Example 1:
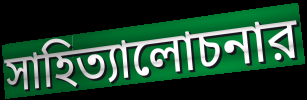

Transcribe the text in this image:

সাহিত্যালোচনার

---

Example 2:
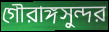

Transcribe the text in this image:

গৌরাঙ্গসুন্দর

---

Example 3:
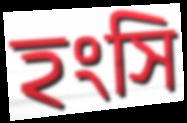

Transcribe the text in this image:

হংসি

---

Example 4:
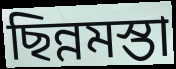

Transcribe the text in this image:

ছিন্নমস্তা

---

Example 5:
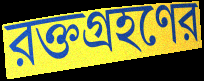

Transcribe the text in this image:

রক্তগ্রহণের